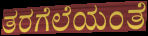
ತರಗೆಲೆಯಂತೆ